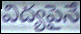
విద్యపైనే